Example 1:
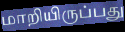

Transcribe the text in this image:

மாறியிருப்பது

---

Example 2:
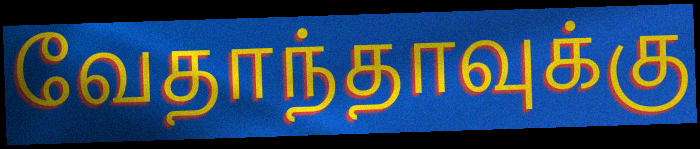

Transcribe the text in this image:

வேதாந்தாவுக்கு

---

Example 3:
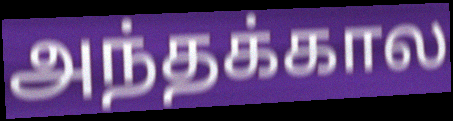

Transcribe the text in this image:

அந்தக்கால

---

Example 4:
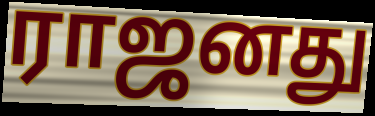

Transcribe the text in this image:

ராஜனது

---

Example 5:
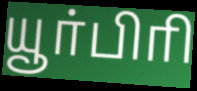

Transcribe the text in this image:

யூர்பிரி